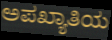
ಅಪಖ್ಯಾತಿಯ